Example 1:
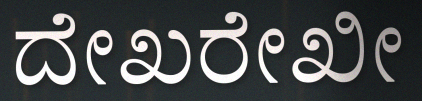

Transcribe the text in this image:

ದೇಖರೇಖೀ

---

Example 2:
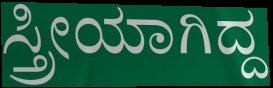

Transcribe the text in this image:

ಸ್ತ್ರೀಯಾಗಿದ್ದ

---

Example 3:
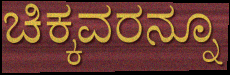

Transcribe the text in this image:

ಚಿಕ್ಕವರನ್ನೂ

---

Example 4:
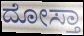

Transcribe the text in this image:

ದೋಸ್ತಾ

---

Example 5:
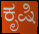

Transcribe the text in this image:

ಕೃಷಿ